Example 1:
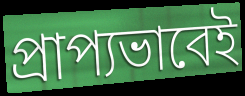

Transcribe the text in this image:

প্রাপ্যভাবেই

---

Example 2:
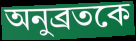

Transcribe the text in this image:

অনুব্রতকে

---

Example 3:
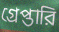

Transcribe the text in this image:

গ্রেপ্তারি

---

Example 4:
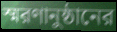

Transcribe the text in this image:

স্মরণানুষ্ঠানের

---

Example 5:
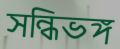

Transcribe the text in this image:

সন্ধিভঙ্গ